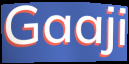
Gaaji